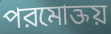
পরমোক্তয়